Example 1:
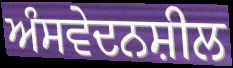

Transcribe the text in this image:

ਅੰਸਵੇਦਨਸ਼ੀਲ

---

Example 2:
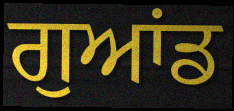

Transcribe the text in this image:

ਗੁਆਂਡ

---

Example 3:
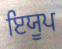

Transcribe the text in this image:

ਇਯੂਪ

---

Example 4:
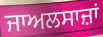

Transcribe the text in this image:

ਜਾਅਲਸਾਜ਼ਾਂ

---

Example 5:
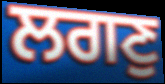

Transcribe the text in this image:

ਲਗਣੁ